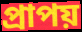
প্রাপয়